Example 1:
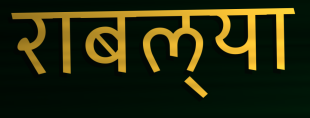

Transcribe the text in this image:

राबल्या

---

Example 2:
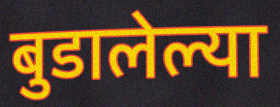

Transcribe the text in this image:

बुडालेल्या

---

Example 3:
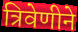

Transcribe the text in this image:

त्रिवेणीने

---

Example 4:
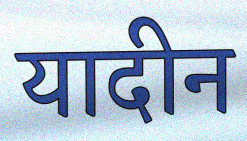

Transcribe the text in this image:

यादीन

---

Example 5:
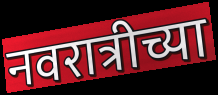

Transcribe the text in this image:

नवरात्रीच्या